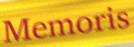
Memoris